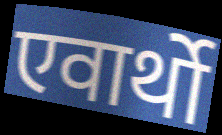
एवार्थो